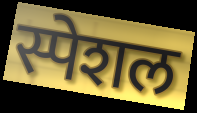
स्पेशल